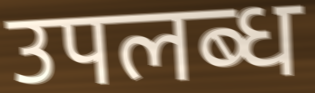
उपलब्ध